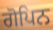
ਗੋਪਿਨ